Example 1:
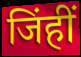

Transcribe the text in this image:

जिंहीं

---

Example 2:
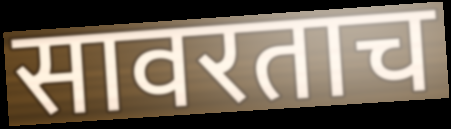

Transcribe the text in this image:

सावरताच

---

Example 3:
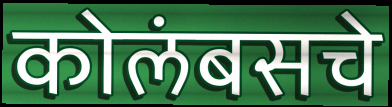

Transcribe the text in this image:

कोलंबसचे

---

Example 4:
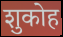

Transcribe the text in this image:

शुकोह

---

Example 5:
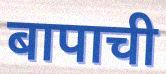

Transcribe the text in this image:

बापाची